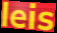
leis